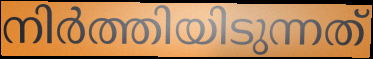
നിർത്തിയിടുന്നത്